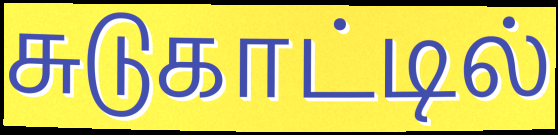
சுடுகாட்டில்